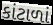
કાંટાળાં